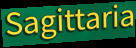
Sagittaria